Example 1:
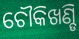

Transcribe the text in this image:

ଚୌକିଖଣ୍ଡି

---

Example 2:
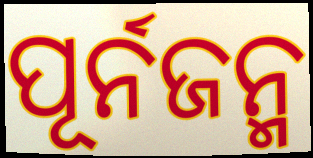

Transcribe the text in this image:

ପୂର୍ନଜନ୍ମ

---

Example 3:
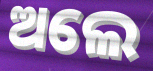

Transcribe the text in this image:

ଅଲେ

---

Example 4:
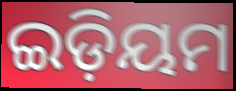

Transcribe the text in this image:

ଇଡ଼ିୟମ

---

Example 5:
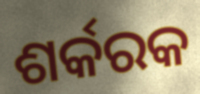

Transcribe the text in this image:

ଶର୍କରକ